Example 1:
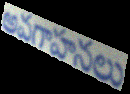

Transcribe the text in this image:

అవగాహనలు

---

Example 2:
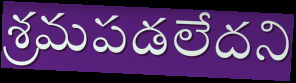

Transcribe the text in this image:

శ్రమపడలేదని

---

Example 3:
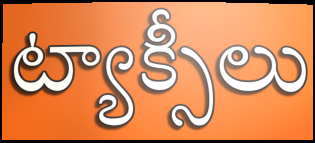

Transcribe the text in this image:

ట్యాక్సీలు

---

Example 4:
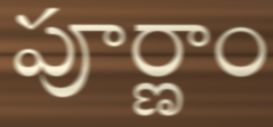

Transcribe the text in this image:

పూర్ణాం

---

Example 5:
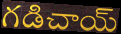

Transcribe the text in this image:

గడిచాయ్